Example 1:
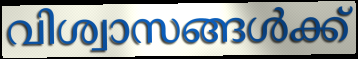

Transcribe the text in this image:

വിശ്വാസങ്ങൾക്ക്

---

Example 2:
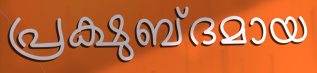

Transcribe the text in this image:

പ്രക്ഷുബ്ദമായ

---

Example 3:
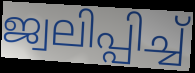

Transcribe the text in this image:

ജ്വലിപ്പിച്ച്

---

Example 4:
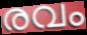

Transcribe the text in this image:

രവം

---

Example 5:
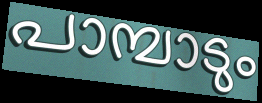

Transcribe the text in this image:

പാമ്പാടും